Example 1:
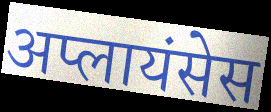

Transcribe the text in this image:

अप्लायंसेस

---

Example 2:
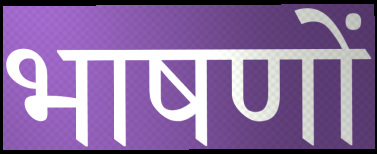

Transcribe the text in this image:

भाषणों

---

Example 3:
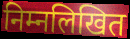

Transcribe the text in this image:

निम्नलिखित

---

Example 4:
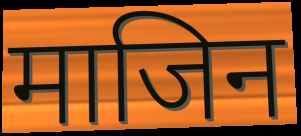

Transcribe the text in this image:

माजिन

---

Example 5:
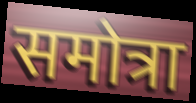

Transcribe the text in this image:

समोत्रा